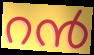
റൻ